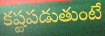
కష్టపడుతుంటే